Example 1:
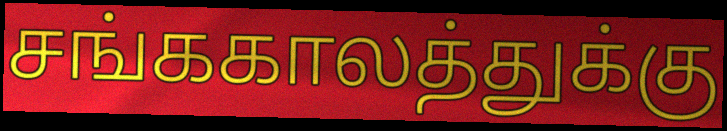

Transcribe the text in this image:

சங்ககாலத்துக்கு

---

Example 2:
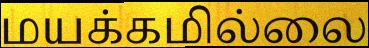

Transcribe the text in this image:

மயக்கமில்லை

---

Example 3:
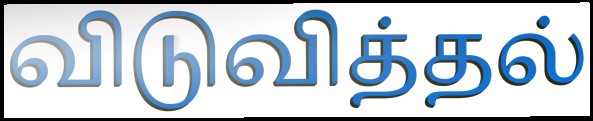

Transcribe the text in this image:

விடுவித்தல்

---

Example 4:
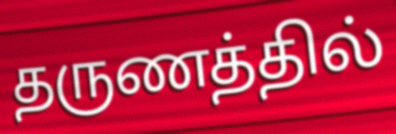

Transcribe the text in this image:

தருணத்தில்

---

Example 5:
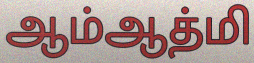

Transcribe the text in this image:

ஆம்ஆத்மி